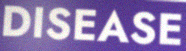
DISEASE